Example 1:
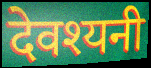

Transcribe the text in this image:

देवश्यनी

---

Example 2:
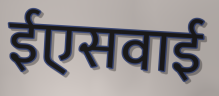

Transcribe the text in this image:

ईएसवाई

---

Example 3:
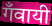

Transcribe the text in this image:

गँवायी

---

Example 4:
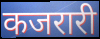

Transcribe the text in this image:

कजरारी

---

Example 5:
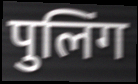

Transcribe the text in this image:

पुलिंग